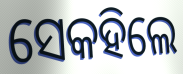
ସେକହିଲେ